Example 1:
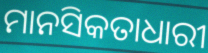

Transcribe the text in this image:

ମାନସିକତାଧାରୀ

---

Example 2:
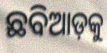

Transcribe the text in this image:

ଛବିଆଡ଼କୁ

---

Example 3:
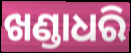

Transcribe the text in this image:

ଖଣ୍ଡାଧରି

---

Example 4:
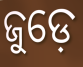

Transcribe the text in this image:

ଜୁଡ଼େ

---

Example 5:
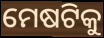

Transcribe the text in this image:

ମେଷଟିକୁ